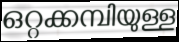
ഒറ്റക്കമ്പിയുള്ള